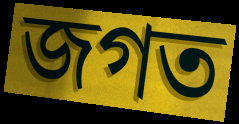
জগত